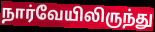
நார்வேயிலிருந்து